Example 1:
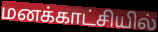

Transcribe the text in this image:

மனக்காட்சியில்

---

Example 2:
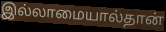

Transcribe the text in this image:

இல்லாமையால்தான்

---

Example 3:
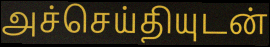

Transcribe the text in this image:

அச்செய்தியுடன்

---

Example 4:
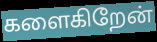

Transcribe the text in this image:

களைகிறேன்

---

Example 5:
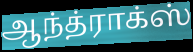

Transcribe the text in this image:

ஆந்த்ராக்ஸ்